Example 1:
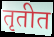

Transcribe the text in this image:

तृतीत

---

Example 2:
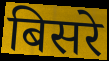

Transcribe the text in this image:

बिसरे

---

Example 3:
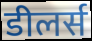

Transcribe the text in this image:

डीलर्स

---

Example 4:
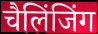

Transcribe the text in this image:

चैलिंजिंग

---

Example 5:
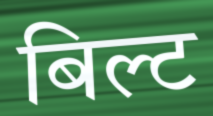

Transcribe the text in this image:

बिल्‍ट